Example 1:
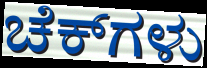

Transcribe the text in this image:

ಚೆಕ್‌ಗಳು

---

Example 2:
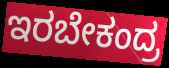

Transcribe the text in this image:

ಇರಬೇಕಂದ್ರ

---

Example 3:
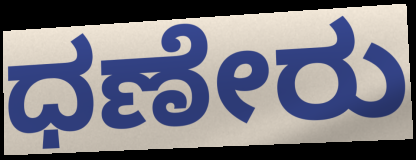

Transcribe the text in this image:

ಧಣೇರು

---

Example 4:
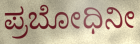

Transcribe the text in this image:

ಪ್ರಬೋಧಿನೀ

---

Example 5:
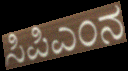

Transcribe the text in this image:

ಸಿಪಿಎಂನ